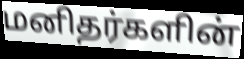
மனிதர்களின்